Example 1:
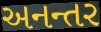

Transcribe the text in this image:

અનન્તર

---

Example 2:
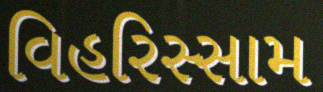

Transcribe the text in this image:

વિહરિસ્સામ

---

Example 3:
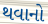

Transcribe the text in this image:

થવાનો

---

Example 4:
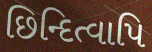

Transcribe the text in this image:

છિન્દિત્વાપિ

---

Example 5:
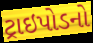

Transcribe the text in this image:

ટ્રાઇપોડનો